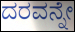
ದರವನ್ನೇ